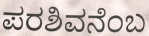
ಪರಶಿವನೆಂಬ